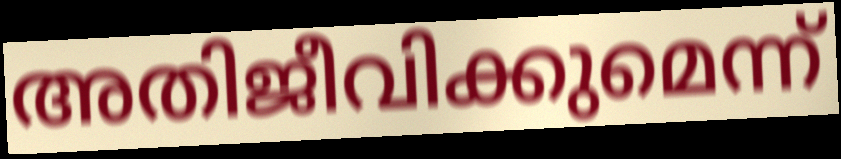
അതിജീവിക്കുമെന്ന്